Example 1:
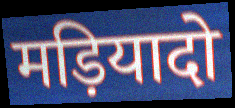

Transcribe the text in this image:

मड़ियादो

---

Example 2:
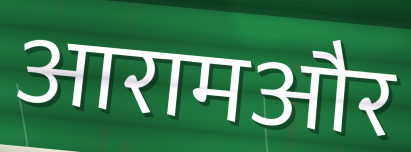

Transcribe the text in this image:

आरामऔर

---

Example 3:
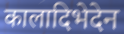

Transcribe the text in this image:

कालादिभेदेन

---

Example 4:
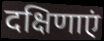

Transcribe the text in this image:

दक्षिणाएं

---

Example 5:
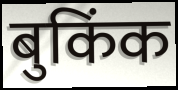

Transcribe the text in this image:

बुकिंक